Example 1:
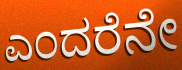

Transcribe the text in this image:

ಎಂದರೆನೇ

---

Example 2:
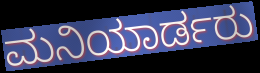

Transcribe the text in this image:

ಮನಿಯಾರ್ಡರು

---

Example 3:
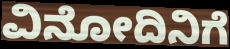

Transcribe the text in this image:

ವಿನೋದಿನಿಗೆ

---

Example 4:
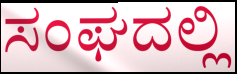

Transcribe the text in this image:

ಸಂಘದಲ್ಲಿ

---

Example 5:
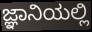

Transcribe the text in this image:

ಜ್ಞಾನಿಯಲ್ಲಿ